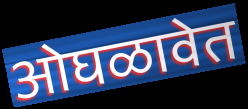
ओघळावेत